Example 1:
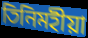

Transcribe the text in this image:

তিনিমহীয়া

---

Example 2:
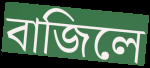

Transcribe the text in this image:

বাজিলে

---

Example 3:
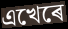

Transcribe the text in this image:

এখেৰে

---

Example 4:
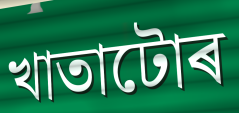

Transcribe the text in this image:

খাতাটোৰ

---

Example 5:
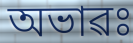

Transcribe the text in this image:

অভাৱঃ